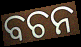
ବଚନ